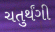
ચતુર્થંગી